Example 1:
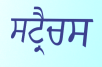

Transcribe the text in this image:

ਸਟ੍ਰੈਚਸ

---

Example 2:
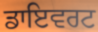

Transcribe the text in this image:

ਡਾਇਵਰਟ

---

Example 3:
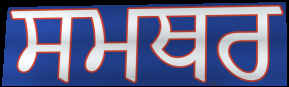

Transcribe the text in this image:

ਸਮਥਰ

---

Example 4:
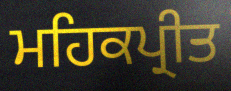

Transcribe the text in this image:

ਮਹਿਕਪ੍ਰੀਤ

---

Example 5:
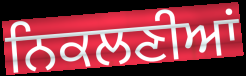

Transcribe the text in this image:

ਨਿਕਲਣੀਆਂ